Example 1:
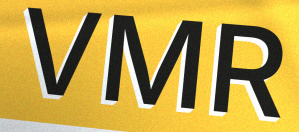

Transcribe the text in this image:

VMR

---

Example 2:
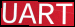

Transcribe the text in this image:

UART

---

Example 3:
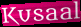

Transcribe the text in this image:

Kusaal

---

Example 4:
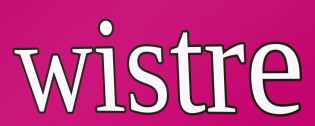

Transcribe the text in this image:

wistre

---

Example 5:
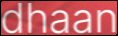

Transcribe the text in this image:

dhaan